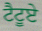
ਟੈਟੂਏ